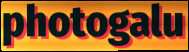
photogalu